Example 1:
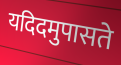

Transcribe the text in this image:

यदिदमुपासते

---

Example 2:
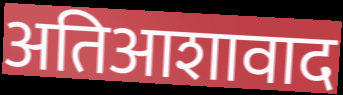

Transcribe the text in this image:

अतिआशावाद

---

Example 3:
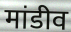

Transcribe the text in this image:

मांडीव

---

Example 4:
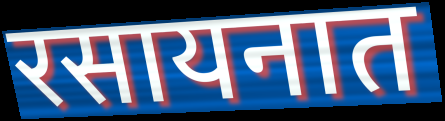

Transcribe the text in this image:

रसायनात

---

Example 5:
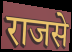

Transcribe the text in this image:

राजसे